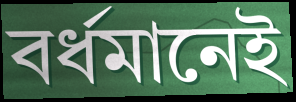
বর্ধমানেই